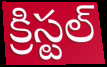
క్రిస్టల్